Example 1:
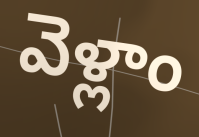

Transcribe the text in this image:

వెళ్లాం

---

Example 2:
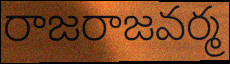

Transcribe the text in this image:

రాజరాజవర్మ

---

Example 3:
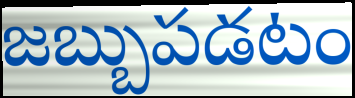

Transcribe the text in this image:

జబ్బుపడటం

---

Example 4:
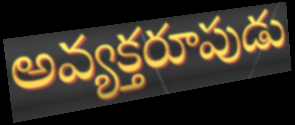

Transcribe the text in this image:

అవ్యక్తరూపుడు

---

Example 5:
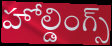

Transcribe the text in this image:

హోల్డింగ్స్